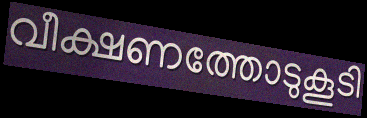
വീക്ഷണത്തോടുകൂടി